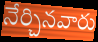
నేర్చినవారు